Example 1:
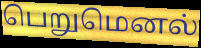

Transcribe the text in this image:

பெறுமெனல்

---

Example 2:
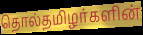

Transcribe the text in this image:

தொல்தமிழர்களின்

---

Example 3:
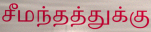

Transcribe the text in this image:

சீமந்தத்துக்கு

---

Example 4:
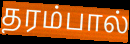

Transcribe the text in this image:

தரம்பால்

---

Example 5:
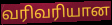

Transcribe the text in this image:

வரிவரியான